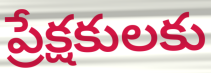
ప్రేక్షకులకు